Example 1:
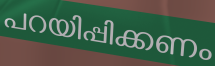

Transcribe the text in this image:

പറയിപ്പിക്കണം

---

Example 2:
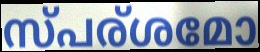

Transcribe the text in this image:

സ്പര്ശമോ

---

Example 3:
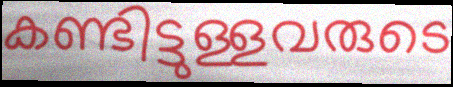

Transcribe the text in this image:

കണ്ടിട്ടുള്ളവരുടെ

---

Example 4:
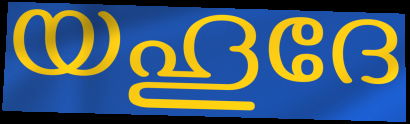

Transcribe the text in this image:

യഹൂദേ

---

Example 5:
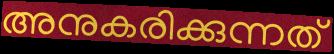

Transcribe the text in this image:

അനുകരിക്കുന്നത്